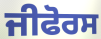
ਜੀਫੋਰਸ